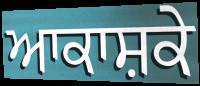
ਆਕਾਸ਼ਕੇ